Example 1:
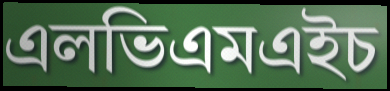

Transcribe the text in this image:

এলভিএমএইচ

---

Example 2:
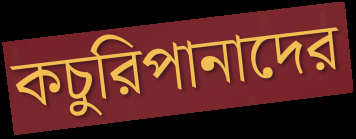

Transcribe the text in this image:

কচুরিপানাদের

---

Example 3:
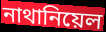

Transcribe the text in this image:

নাথানিয়েল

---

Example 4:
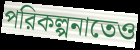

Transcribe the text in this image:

পরিকল্পনাতেও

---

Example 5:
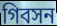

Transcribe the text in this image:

গিবসন